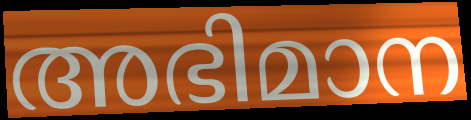
അഭിമാന